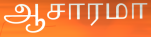
ஆசாரமா